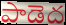
పాడెద